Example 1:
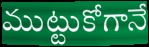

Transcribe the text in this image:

ముట్టుకోగానే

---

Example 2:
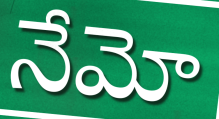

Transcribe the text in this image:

నేమో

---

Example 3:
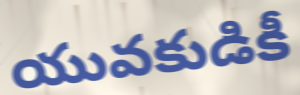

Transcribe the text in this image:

యువకుడికీ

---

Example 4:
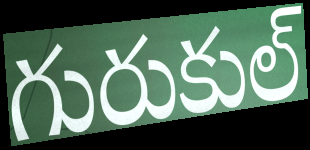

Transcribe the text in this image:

గురుకుల్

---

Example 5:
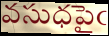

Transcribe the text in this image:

వసుధపైఁ